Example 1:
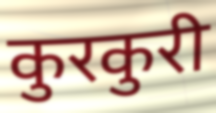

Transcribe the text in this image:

कुरकुरी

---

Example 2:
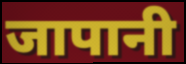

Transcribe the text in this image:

जापानी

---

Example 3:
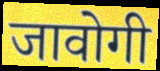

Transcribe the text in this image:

जावोगी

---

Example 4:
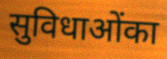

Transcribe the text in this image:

सुविधाओंका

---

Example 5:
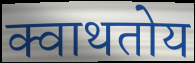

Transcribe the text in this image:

क्वाथतोय